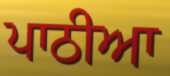
ਪਾਠੀਆ